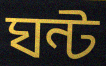
ঘন্ট